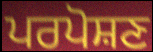
ਪਰਪੋਸ਼ਣ